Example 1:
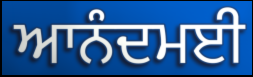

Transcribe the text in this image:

ਆਨੰਦਮਈ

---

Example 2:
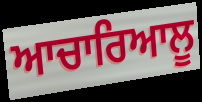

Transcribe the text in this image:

ਆਚਾਰਿਆਲੂ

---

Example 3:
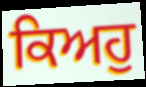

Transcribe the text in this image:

ਕਿਅਹੁ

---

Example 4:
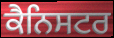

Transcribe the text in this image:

ਕੈਨਿਸਟਰ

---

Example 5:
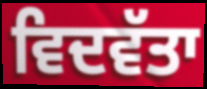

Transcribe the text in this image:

ਵਿਦਵੱਤਾ